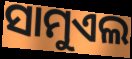
ସାମୁଏଲ